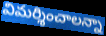
విమర్శించాలన్నా